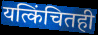
यत्किंचितही